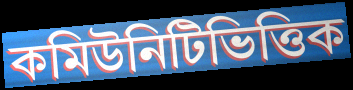
কমিউনিটিভিত্তিক